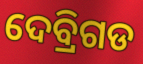
ଦେବ୍ରିଗଡ